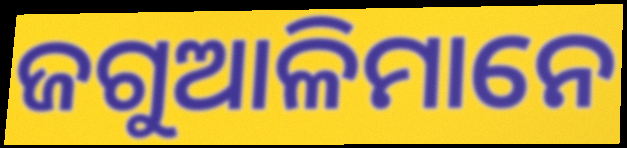
ଜଗୁଆଳିମାନେ